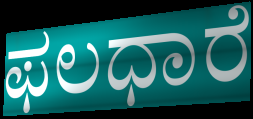
ಫಲಧಾರೆ